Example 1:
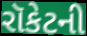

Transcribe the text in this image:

રૉકેટની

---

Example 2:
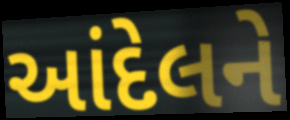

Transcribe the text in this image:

આંદેલને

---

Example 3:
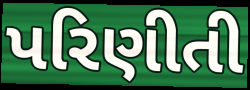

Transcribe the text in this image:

પરિણીતી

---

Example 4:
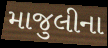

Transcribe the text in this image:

માજુલીના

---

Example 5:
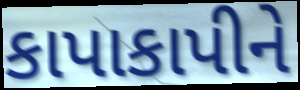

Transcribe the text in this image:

કાપાકાપીને